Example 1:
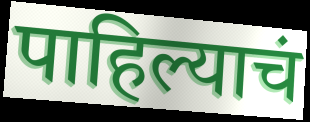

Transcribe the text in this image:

पाहिल्याचं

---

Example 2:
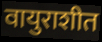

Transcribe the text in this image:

वायुराशीत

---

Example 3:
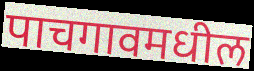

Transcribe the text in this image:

पाचगावमधील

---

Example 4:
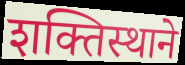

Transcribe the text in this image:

शक्तिस्थाने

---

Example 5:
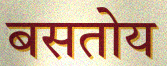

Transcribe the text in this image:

बसतोय